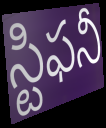
స్టిఫనీ